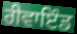
ਰੀਵਾਇੰਡ